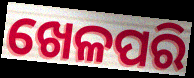
ଖେଳପରି